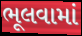
ભૂલવામાં